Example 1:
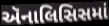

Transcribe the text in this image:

ઍનાલિસિસમાં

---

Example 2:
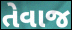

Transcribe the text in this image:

તેવાજ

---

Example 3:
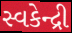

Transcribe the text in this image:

સ્વકેન્દ્રી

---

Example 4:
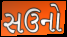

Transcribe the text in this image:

સઉનો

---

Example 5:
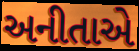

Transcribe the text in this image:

અનીતાએ